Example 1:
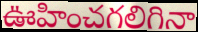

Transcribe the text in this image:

ఊహించగలిగినా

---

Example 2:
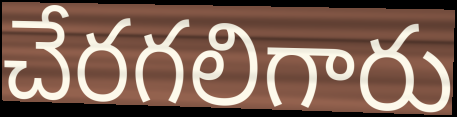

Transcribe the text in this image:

చేరగలిగారు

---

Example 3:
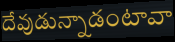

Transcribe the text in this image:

దేవుడున్నాడంటావా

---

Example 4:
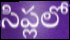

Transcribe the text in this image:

సిప్లలో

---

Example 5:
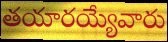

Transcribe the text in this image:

తయారయ్యేవారు